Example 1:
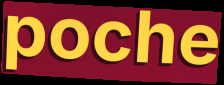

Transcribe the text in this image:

poche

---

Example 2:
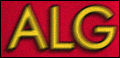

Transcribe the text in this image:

ALG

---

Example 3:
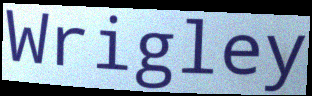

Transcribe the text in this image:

Wrigley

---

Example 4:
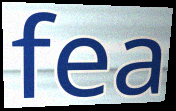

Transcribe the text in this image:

fea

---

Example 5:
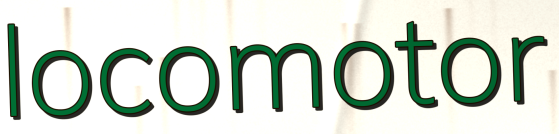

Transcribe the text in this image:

locomotor